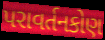
પરાવર્તનકોણ